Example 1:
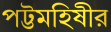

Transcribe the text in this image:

পট্টমহিষীর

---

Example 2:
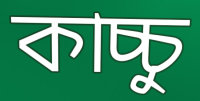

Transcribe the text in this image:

কাচ্চু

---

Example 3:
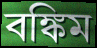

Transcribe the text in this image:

বঙ্কিম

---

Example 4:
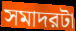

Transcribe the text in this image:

সমাদরটা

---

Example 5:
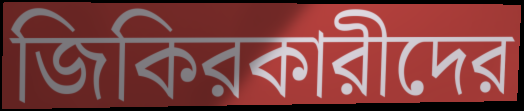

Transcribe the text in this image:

জিকিরকারীদের